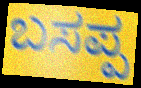
ಬಸಪ್ಪ